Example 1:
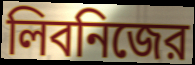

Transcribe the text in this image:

লিবনিজের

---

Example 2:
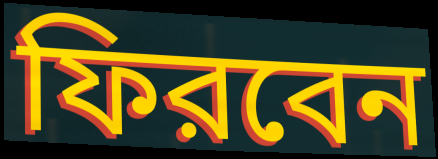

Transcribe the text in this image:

ফিরবেন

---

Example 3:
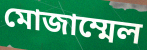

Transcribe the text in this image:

মোজাম্মেল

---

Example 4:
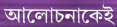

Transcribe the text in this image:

আলোচনাকেই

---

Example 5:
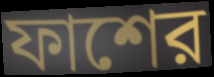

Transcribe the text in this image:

ফাশের